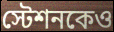
স্টেশনকেও